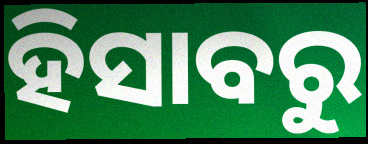
ହିସାବରୁ